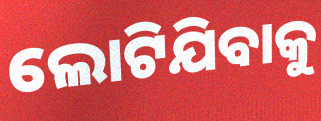
ଲୋଟିଯିବାକୁ